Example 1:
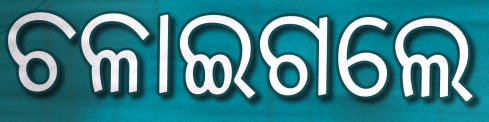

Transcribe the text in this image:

ଚଳାଇଗଲେ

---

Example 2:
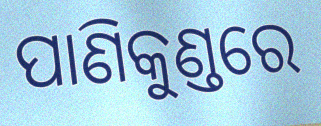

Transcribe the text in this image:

ପାଣିକୁଣ୍ଡରେ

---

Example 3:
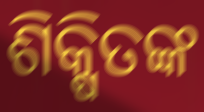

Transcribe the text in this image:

ଶିକ୍ଷିତଙ୍କ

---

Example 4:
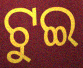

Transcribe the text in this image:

ଟୁଇ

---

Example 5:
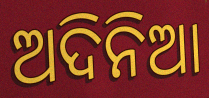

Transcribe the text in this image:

ଅଦିନିଆ